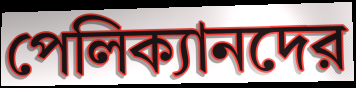
পেলিক্যানদের